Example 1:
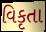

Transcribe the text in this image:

વિકૃતા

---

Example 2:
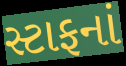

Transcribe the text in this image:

સ્ટાફનાં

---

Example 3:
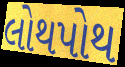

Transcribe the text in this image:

લોથપોથ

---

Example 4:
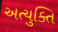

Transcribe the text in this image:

અત્યુક્તિ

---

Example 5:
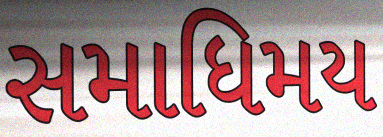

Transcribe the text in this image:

સમાધિમય